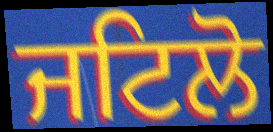
ਜਟਿਲੋ